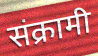
संक्रामी